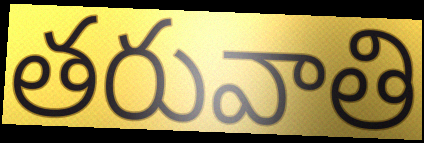
తరువాతి